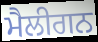
ਮੈਲੀਗਨ